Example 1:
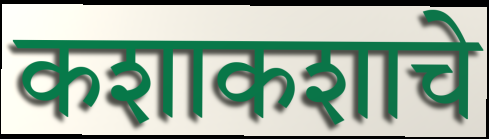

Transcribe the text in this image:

कशाकशाचे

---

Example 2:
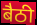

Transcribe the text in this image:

बैठी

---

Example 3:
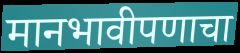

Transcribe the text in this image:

मानभावीपणाचा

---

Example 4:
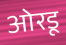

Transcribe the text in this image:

ओरडू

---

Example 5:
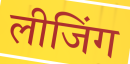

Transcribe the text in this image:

लीजिंग